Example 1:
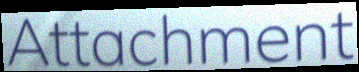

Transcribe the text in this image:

Attachment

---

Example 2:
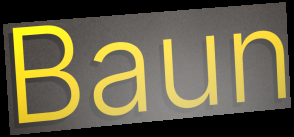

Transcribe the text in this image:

Baun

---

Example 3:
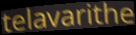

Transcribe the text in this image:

telavarithe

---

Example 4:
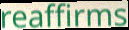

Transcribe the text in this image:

reaffirms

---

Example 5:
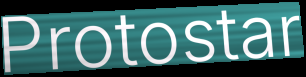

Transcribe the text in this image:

Protostar